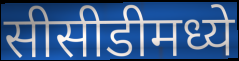
सीसीडीमध्ये